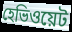
হেভিওয়েট